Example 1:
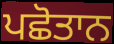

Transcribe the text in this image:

ਪਛੋਤਾਨ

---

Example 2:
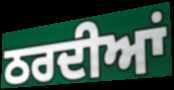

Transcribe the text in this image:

ਠਰਦੀਆਂ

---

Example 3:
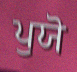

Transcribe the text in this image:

ਪੁਯੋ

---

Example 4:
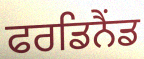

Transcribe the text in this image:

ਫਰਡਿਨੈਂਡ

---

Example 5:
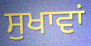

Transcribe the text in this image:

ਸੁਖਾਵਾਂ